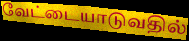
வேட்டையாடுவதில்